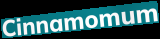
Cinnamomum